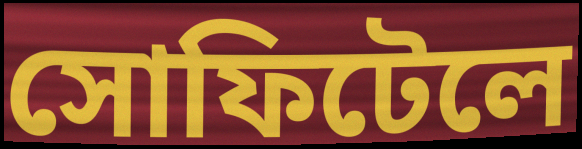
সোফিটেলে